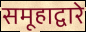
समूहाद्वारे